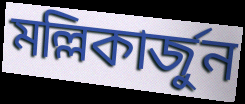
মল্লিকার্জুন